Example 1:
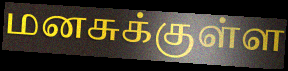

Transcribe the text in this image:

மனசுக்குள்ள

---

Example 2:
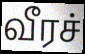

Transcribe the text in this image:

வீரச்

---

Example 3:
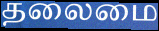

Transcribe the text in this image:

தலைமை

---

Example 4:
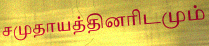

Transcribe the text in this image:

சமுதாயத்தினரிடமும்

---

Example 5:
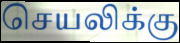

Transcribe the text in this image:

செயலிக்கு